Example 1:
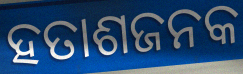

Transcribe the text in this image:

ହତାଶଜନକ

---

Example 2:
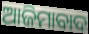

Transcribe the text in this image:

ଆଜିମାବାଦ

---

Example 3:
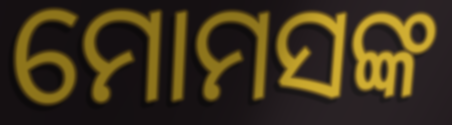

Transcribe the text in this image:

ମୋମସଙ୍କ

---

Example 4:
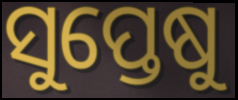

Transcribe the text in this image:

ସୁପ୍ତେଷୁ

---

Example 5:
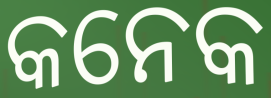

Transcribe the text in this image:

କନେକ